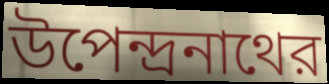
উপেন্দ্রনাথের